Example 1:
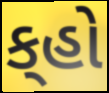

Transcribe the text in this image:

ક્‌હો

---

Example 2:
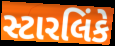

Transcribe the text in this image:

સ્ટારલિંકે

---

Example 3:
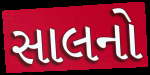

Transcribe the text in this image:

સાલનો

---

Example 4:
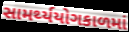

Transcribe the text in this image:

સામર્થ્યયોગકાળમાં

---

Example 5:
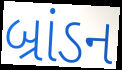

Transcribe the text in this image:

બ્રાંડન